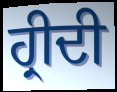
ਹ੍ਰੀਦੀ